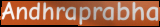
Andhraprabha